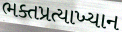
ભક્તપ્રત્યાખ્યાન